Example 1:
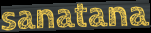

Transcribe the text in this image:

sanatana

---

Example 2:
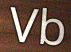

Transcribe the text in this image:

Vb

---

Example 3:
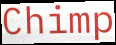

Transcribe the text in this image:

Chimp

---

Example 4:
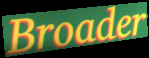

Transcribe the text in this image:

Broader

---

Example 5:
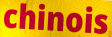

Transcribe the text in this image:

chinois